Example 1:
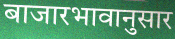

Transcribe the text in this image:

बाजारभावानुसार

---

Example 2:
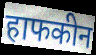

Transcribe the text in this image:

हाफकीन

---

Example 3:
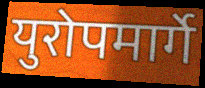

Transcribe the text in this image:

युरोपमार्गे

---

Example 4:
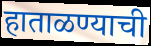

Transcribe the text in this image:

हाताळण्याची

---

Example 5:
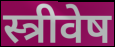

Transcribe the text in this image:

स्त्रीवेष